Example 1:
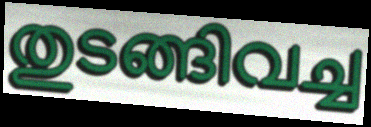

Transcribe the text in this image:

തുടങ്ങിവച്ച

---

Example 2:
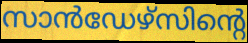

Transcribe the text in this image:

സാൻഡേഴ്സിന്റെ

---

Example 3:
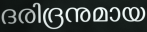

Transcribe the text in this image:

ദരിദ്രനുമായ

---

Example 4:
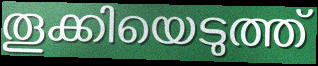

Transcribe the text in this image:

തൂക്കിയെടുത്ത്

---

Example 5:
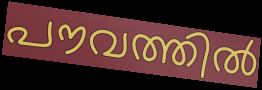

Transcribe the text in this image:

പൗവത്തിൽ